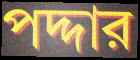
পদ্দার